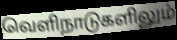
வெளிநாடுகளிலும்